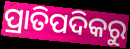
ପ୍ରାତିପଦିକରୁ